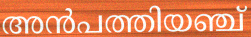
അൻപത്തിയഞ്ച്